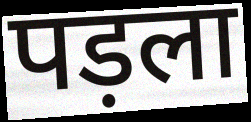
पड़ला